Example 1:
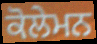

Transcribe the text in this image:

ਕੋਲੇਮਨ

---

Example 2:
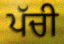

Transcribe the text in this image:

ਪੱਚੀ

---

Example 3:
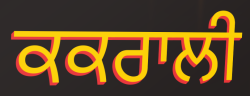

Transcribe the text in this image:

ਕਕਰਾਲੀ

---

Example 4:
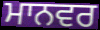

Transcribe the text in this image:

ਮਾਨਵਰ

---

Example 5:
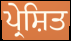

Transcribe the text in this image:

ਪ੍ਰੇਸ਼ਿਤ